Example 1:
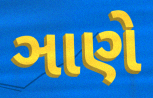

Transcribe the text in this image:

ઞાણે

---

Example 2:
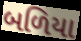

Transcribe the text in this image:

બળિયા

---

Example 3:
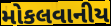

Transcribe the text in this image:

મોકલવાનીય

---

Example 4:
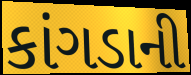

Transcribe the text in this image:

કાંગડાની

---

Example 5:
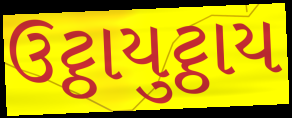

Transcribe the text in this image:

ઉટ્ઠાયુટ્ઠાય